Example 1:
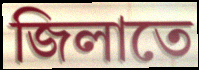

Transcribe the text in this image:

জিলাতে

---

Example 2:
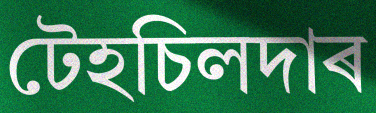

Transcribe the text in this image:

টেহচিলদাৰ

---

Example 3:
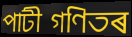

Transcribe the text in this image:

পাটীগণিতৰ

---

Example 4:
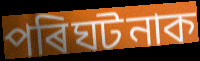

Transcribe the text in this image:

পৰিঘটনাক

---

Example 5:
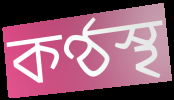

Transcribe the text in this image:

কণ্ঠস্থ